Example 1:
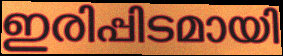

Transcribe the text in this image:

ഇരിപ്പിടമായി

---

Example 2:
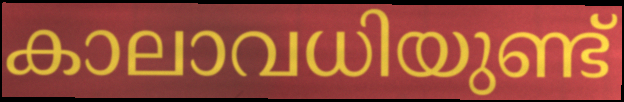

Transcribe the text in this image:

കാലാവധിയുണ്ട്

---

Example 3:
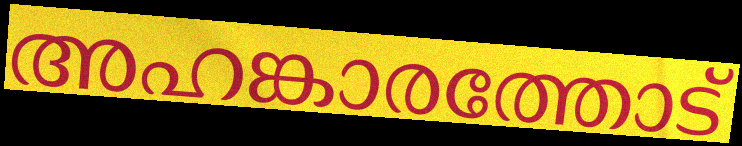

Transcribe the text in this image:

അഹങ്കാരത്തോട്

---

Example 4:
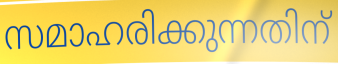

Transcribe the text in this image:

സമാഹരിക്കുന്നതിന്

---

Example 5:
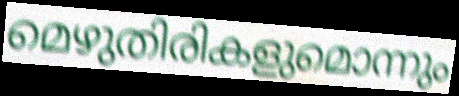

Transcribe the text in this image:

മെഴുതിരികളുമൊന്നും